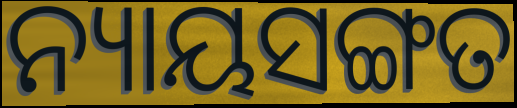
ନ୍ୟାୟସଙ୍ଗତ